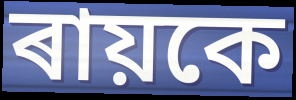
ৰায়কে